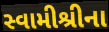
સ્વામીશ્રીના